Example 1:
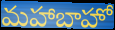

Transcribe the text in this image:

మహాబాహో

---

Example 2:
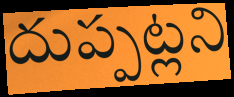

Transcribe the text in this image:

దుప్పట్లని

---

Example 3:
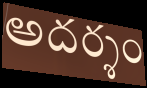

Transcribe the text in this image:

అదర్శం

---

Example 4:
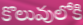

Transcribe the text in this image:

కొలువులోకి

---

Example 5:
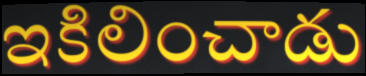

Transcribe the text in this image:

ఇకిలించాడు